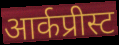
आर्कप्रीस्ट